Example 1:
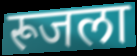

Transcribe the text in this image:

रूजला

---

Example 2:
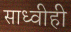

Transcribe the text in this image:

साध्वीही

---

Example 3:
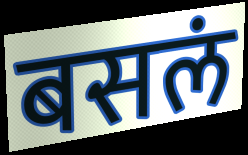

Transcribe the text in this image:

बसलं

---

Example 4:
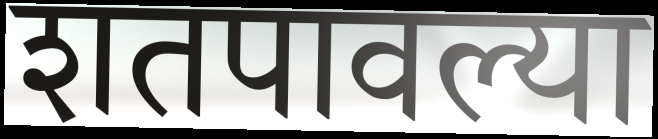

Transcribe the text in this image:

शतपावल्या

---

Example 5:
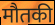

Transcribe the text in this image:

मौतकी